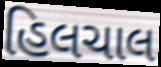
હિલચાલ